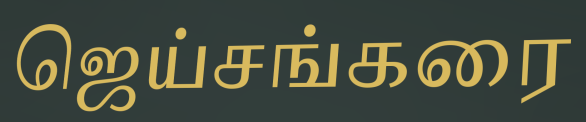
ஜெய்சங்கரை